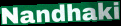
Nandhaki